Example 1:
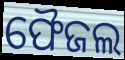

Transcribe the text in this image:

ଫୈଜଲ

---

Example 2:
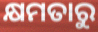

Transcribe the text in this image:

କ୍ଷମତାରୁ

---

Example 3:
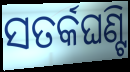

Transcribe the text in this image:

ସତର୍କଘଣ୍ଟି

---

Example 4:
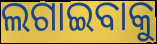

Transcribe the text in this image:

ଲଗାଇବାକୁ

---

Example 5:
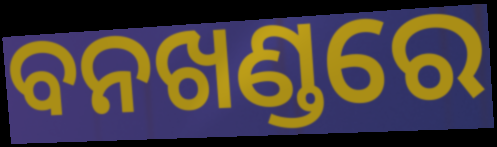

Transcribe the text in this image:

ବନଖଣ୍ଡରେ